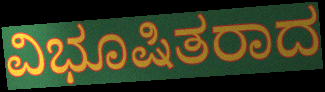
ವಿಭೂಷಿತರಾದ